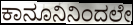
ಕಾನೂನಿನಿಂದಲೇ